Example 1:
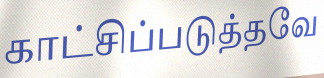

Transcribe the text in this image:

காட்சிப்படுத்தவே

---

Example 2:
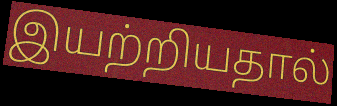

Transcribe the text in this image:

இயற்றியதால்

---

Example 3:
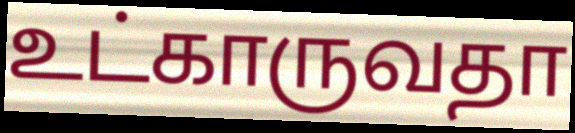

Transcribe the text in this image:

உட்காருவதா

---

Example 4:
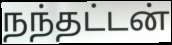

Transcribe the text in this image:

நந்தட்டன்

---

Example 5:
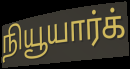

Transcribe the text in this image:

நியூயார்க்